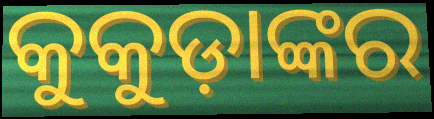
କୁକୁଡ଼ାଙ୍କର